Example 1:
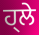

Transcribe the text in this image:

ਹ੍ਲੇ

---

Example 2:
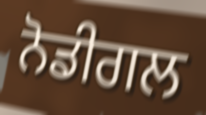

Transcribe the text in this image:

ਨੋਡੀਗਲ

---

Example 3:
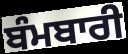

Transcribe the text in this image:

ਬੰਮਬਾਰੀ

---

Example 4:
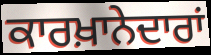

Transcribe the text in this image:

ਕਾਰਖ਼ਾਨੇਦਾਰਾਂ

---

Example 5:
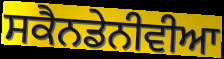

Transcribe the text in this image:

ਸਕੈਨਡੇਨੀਵੀਆ